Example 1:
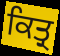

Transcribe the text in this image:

ਕਿਤ੍ਰ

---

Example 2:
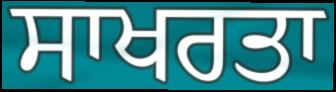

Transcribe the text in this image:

ਸਾਖਰਤਾ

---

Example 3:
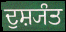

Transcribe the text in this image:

ਦੁਸ਼੍ਯੰਤ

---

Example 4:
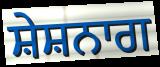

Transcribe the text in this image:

ਸ਼ੇਸ਼ਨਾਗ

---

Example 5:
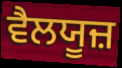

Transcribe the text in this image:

ਵੈਲਯੂਜ਼